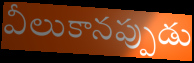
వీలుకానప్పుడు